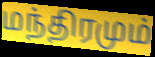
மந்திரமும்